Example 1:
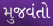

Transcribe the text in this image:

મુજવંતો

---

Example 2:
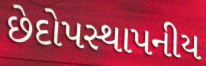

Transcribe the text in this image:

છેદોપસ્થાપનીય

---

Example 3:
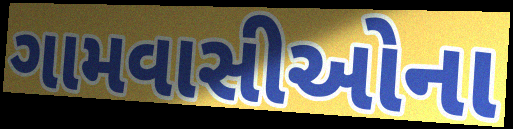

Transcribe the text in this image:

ગામવાસીઓના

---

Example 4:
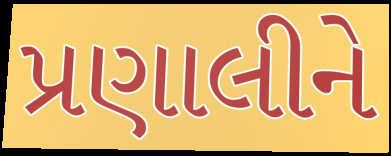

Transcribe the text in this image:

પ્રણાલીને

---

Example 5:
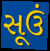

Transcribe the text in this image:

સૂઉં